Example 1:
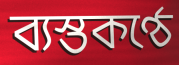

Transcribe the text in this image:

ব্যস্তকণ্ঠে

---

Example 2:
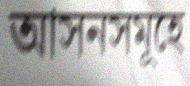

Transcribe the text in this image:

আসনসমূহে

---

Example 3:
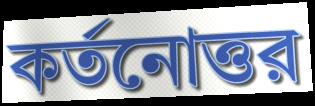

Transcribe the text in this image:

কর্তনোত্তর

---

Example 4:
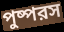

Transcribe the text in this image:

পুষ্পরস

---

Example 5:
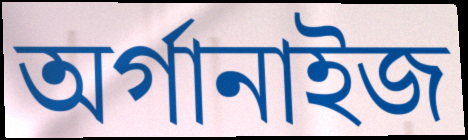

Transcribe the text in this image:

অর্গানাইজ